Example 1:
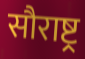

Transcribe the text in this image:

सौराष्ट्र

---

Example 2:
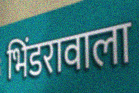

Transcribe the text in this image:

भिंडरावाला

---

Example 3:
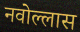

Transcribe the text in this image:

नवोल्लास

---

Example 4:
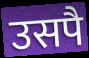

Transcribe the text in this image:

उसपै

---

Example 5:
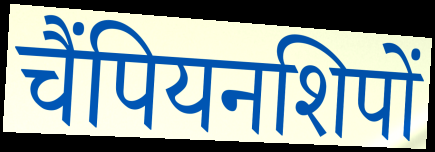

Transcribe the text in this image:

चैंपियनशिपों